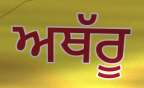
ਅਥੱਰੂ